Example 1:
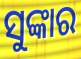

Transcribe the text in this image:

ସୁଙ୍କାର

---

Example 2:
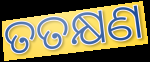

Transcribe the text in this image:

ତତକ୍ଷଣ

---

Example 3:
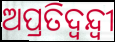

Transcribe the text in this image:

ଅପ୍ରତିଦ୍ବନ୍ଦ୍ବୀ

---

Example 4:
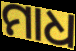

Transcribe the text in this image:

ମାଧ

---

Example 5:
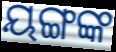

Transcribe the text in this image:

ୟଙ୍ଗଙ୍କ